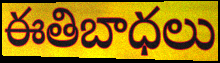
ఈతిబాధలు